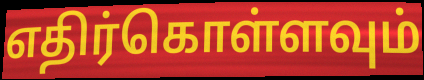
எதிர்கொள்ளவும்